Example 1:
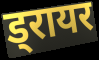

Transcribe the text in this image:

ड्रायर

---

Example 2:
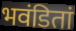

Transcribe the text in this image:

भवंडितां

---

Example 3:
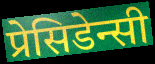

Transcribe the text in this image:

प्रेसिडेन्सी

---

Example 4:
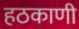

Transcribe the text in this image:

हठकाणी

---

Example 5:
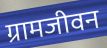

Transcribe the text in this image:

ग्रामजीवन